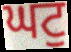
ਘਟੁ